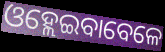
ଓହ୍ଲେଇବାବେଳେ